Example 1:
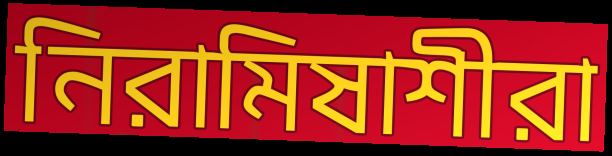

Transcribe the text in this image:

নিরামিষাশীরা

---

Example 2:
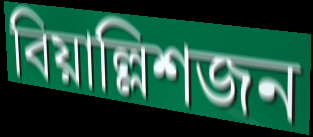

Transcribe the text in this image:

বিয়াল্লিশজন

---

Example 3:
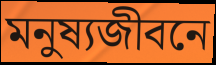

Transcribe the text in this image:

মনুষ্যজীবনে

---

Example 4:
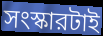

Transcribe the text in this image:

সংস্কারটাই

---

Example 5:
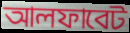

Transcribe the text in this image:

আলফাবেট